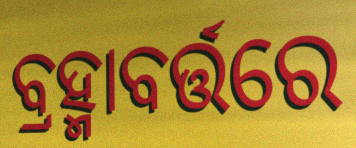
ବ୍ରହ୍ମାବର୍ତ୍ତରେ